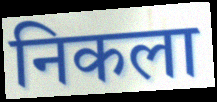
निकला